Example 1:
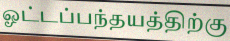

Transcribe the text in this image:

ஓட்டப்பந்தயத்திற்கு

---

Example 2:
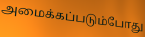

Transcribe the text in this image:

அமைக்கப்படும்போது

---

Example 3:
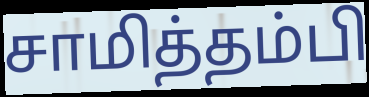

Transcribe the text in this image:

சாமித்தம்பி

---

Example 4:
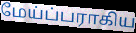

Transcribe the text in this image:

மேய்ப்பராகிய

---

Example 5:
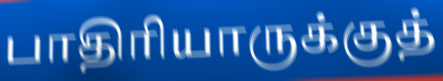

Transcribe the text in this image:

பாதிரியாருக்குத்